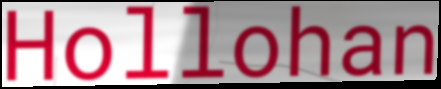
Hollohan